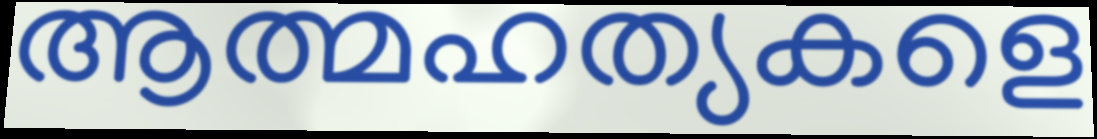
ആത്മഹത്യകളെ